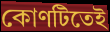
কোণটিতেই